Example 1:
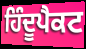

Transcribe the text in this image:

ਹਿੰਦੂਪੈਕਟ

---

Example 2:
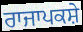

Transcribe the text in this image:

ਰਾਜਾਪਕਸ਼ੇ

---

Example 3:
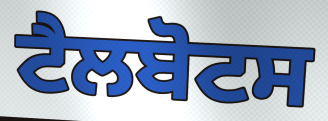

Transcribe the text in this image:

ਟੈਲਬੋਟਸ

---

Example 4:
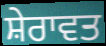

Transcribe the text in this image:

ਸ਼ੇਰਾਵਤ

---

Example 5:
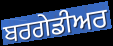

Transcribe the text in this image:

ਬਰਗੇਡੀਅਰ